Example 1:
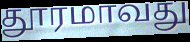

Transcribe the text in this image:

தூரமாவது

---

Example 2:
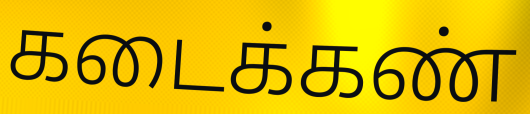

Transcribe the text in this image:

கடைக்கண்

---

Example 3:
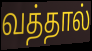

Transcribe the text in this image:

வத்தால்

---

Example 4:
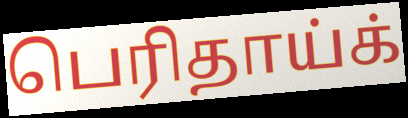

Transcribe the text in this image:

பெரிதாய்க்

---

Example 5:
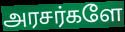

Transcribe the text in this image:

அரசர்களே